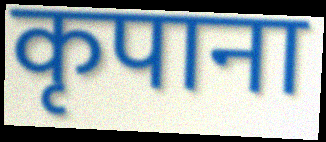
कृपाना